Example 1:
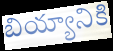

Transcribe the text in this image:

బియ్యానికి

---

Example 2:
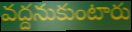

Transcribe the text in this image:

వద్దనుకుంటారు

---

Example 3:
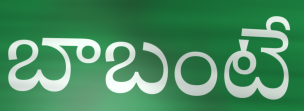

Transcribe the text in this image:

బాబంటే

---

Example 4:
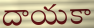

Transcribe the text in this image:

దాయకా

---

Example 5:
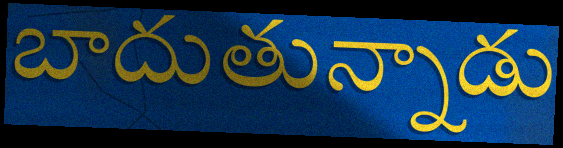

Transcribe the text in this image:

బాదుతున్నాడు